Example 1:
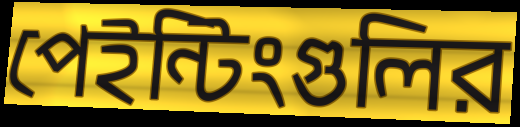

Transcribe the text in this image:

পেইন্টিংগুলির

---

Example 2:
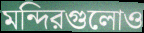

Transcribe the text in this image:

মন্দিরগুলোও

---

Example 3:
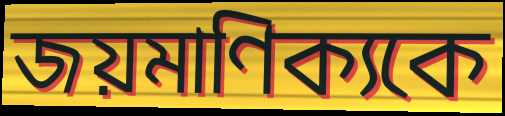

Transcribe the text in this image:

জয়মাণিক্যকে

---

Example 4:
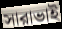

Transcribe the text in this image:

সারাভাই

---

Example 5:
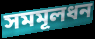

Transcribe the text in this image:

সমমূলধন